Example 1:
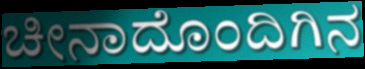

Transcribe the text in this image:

ಚೀನಾದೊಂದಿಗಿನ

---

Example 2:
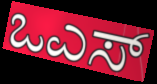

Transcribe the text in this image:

ಒಎಸ್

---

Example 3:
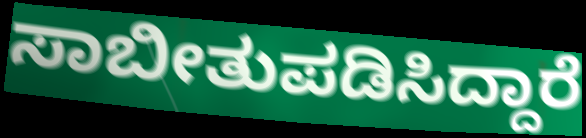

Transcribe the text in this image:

ಸಾಬೀತುಪಡಿಸಿದ್ದಾರೆ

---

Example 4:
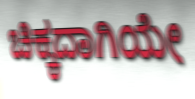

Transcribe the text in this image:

ಚಿಕ್ಕದಾಗಿಯೇ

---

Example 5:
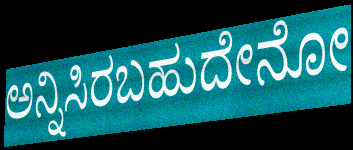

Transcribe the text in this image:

ಅನ್ನಿಸಿರಬಹುದೇನೋ